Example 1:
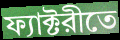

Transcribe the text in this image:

ফ্যাক্টরীতে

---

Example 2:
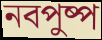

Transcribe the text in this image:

নবপুষ্প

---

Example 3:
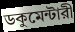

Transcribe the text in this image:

ডকুমেন্টারী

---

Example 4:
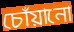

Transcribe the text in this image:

চোঁয়ানো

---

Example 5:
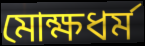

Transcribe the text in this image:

মোক্ষধর্ম